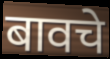
बावचे